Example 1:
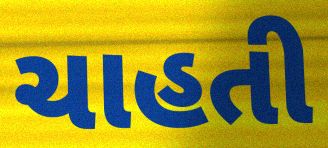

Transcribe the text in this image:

ચાહતી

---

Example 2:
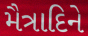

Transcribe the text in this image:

મૈત્રાદિને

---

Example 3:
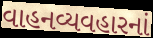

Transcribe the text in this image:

વાહનવ્યવહારનાં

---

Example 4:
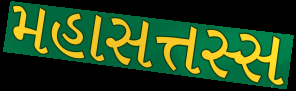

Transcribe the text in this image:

મહાસત્તસ્સ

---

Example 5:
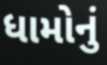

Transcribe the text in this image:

ધામોનું